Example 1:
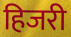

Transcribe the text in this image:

हिजरी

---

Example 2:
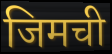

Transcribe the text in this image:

जिमची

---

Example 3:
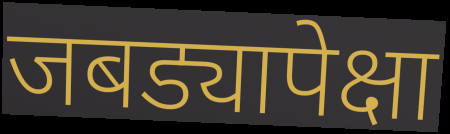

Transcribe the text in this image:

जबड्यापेक्षा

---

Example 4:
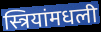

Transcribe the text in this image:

स्त्रियांमधली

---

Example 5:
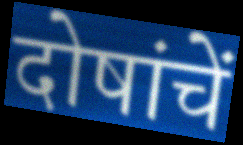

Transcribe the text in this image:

दोषांचें